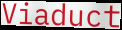
Viaduct